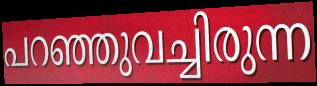
പറഞ്ഞുവച്ചിരുന്ന